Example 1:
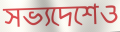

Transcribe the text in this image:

সভ্যদেশেও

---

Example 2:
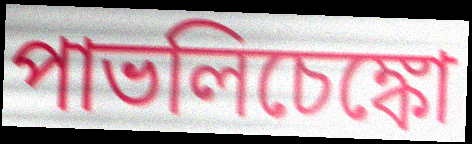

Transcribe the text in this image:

পাভলিচেঙ্কো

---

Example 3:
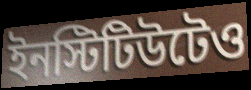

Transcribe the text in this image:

ইনস্টিটিউটেও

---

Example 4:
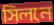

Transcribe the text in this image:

সিলনে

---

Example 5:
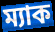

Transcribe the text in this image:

ম্যাক